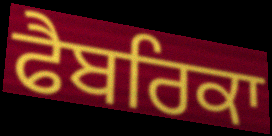
ਫੈਬਰਿਕਾ